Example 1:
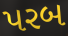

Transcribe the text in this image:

પરબ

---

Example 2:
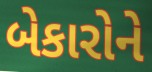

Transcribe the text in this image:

બેકારોને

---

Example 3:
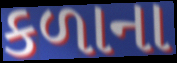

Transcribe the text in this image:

કળાના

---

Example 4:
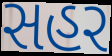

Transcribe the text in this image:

સહર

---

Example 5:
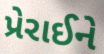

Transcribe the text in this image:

પ્રેરાઈને